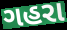
ગહરા